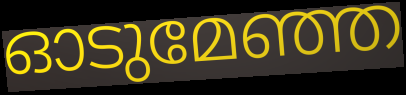
ഓടുമേഞ്ഞ